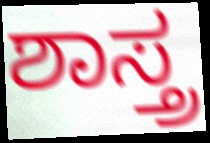
ಶಾಸ್ತ್ರ